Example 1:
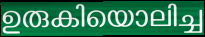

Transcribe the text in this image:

ഉരുകിയൊലിച്ച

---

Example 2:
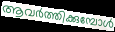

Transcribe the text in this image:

ആവർത്തിക്കുമ്പോൾ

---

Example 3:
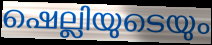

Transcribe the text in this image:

ഷെല്ലിയുടെയും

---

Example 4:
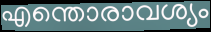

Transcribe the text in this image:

എന്തൊരാവശ്യം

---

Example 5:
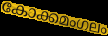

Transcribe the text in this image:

കോക്കമംഗലം